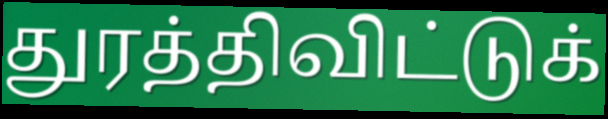
துரத்திவிட்டுக்